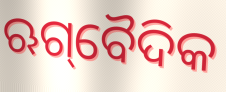
ଋଗ୍‌ବୈଦିକ